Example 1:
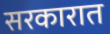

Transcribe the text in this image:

सरकारात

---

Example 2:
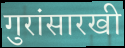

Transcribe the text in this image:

गुरांसारखी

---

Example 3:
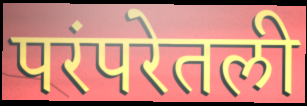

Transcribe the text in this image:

परंपरेतली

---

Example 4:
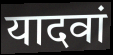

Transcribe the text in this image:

यादवां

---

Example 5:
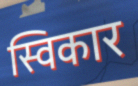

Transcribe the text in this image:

स्विकार